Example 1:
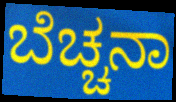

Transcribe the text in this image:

ಬೆಚ್ಚನಾ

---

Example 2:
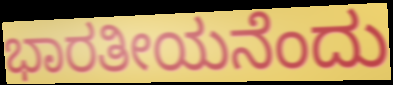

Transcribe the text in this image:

ಭಾರತೀಯನೆಂದು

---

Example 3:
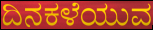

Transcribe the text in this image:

ದಿನಕಳೆಯುವ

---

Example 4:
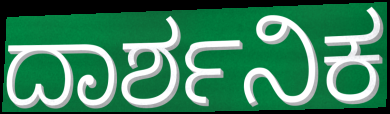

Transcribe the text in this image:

ದಾರ್ಶನಿಕ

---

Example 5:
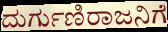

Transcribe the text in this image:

ದುರ್ಗುಣಿರಾಜನಿಗೆ